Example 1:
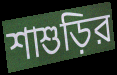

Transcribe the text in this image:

শাশুড়ির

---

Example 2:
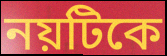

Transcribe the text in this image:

নয়টিকে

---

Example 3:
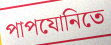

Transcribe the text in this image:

পাপযোনিতে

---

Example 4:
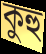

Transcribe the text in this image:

কুহু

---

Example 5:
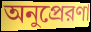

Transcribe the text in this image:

অনুপ্রেরণা